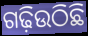
ଗଢ଼ିଉଠିଛି